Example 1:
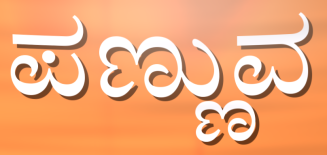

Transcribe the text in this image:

ಪಣ್ಣುವ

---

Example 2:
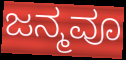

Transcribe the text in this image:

ಜನ್ಮವೂ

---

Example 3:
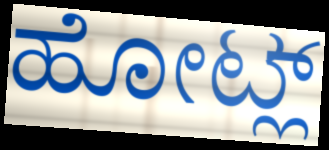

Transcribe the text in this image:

ಹೋಟ್ಲ್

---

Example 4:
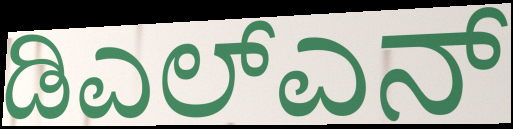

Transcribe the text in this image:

ಡಿಎಲ್ಎನ್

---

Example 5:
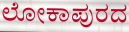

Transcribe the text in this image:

ಲೋಕಾಪುರದ